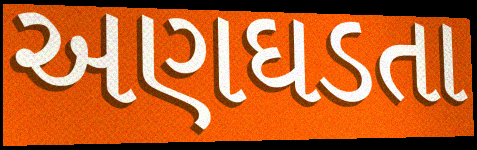
અણઘડતા